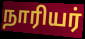
நாரியர்